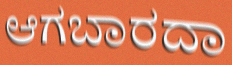
ಆಗಬಾರದಾ